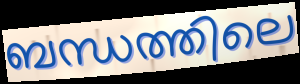
ബന്ധത്തിലെ